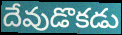
దేవుడొకడు